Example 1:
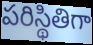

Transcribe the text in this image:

పరిస్థితిగా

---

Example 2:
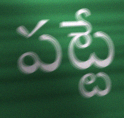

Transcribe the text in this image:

పట్టే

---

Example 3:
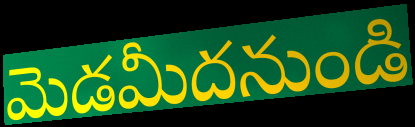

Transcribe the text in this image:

మెడమీదనుండి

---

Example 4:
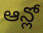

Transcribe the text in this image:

ఆన్లో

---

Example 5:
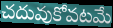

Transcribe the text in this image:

చదువుకోవటమే